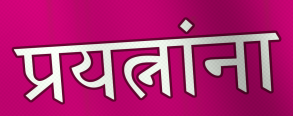
प्रयत्नांना